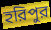
হরিপুর